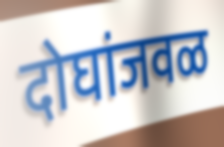
दोघांजवळ